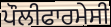
ਪੌਲੀਫਾਰਮੇਸੀ